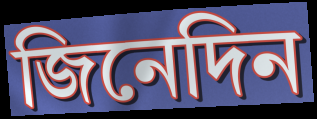
জিনেদিন